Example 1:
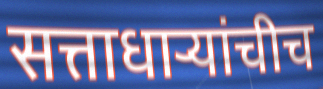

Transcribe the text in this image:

सत्ताधाऱ्यांचीच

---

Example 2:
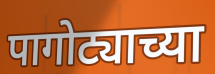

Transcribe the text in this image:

पागोट्याच्या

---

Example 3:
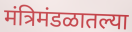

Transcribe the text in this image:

मंत्रिमंडळातल्या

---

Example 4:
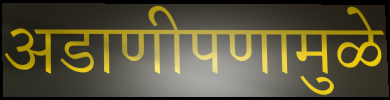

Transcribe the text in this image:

अडाणीपणामुळे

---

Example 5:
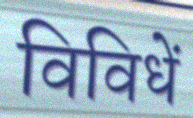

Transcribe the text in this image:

विविधें